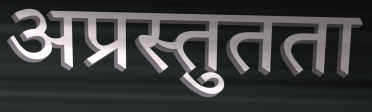
अप्रस्तुतता